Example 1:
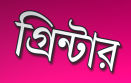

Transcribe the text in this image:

গ্রিন্টার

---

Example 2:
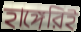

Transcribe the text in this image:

হাঙ্গেরিই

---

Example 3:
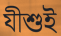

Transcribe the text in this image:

যীশুই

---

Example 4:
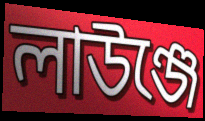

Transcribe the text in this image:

লাউঞ্জে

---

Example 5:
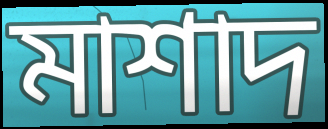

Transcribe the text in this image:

মাশাদ